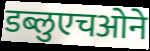
डब्लुएचओने